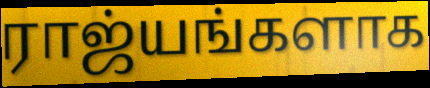
ராஜ்யங்களாக